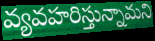
వ్యవహరిస్తున్నామని